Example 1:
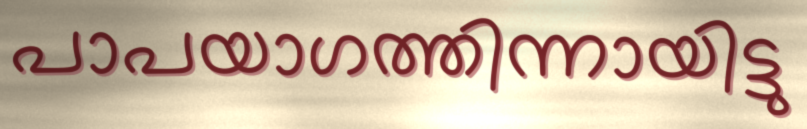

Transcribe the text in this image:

പാപയാഗത്തിന്നായിട്ടു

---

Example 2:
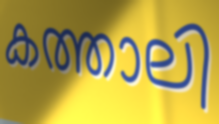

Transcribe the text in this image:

കത്താലി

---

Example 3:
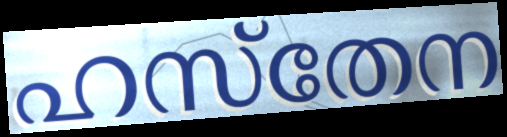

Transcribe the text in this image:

ഹസ്തേന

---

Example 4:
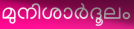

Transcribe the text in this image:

മുനിശാർദൂലം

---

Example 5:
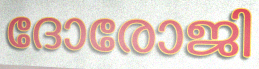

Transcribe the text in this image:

ദോരോജി